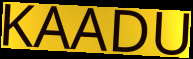
KAADU